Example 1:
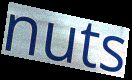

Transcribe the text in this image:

nuts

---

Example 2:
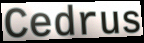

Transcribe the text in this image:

Cedrus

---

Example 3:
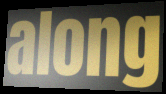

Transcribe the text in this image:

along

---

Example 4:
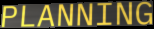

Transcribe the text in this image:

PLANNING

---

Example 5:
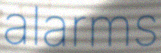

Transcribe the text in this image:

alarms